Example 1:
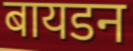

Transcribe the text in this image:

बायडन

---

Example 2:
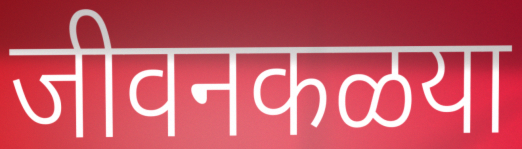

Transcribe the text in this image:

जीवनकळया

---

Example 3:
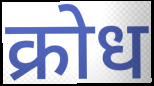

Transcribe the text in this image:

क्रोध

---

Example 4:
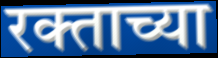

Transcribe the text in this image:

रक्ताच्या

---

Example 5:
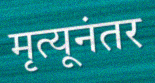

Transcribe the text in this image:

मृत्यूनंतर